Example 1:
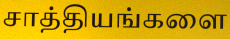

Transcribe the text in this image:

சாத்தியங்களை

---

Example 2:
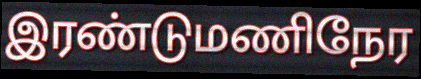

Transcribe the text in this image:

இரண்டுமணிநேர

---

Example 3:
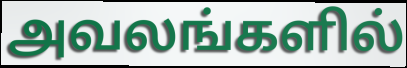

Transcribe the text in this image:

அவலங்களில்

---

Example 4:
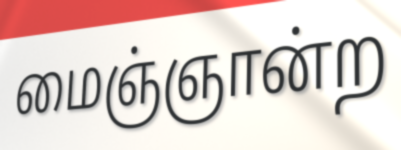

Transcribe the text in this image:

மைஞ்ஞான்ற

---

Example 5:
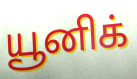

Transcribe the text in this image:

யூனிக்